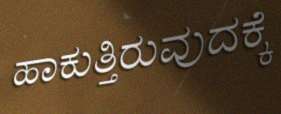
ಹಾಕುತ್ತಿರುವುದಕ್ಕೆ